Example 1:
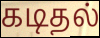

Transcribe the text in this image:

கடிதல்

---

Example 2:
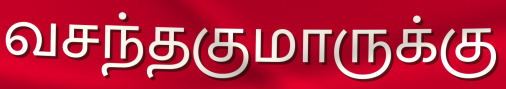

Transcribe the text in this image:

வசந்தகுமாருக்கு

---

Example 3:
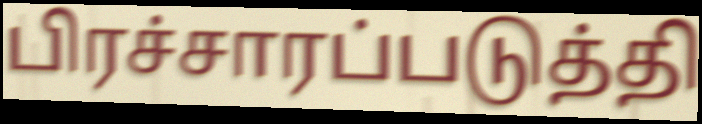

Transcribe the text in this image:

பிரச்சாரப்படுத்தி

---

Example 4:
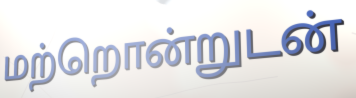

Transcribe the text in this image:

மற்றொன்றுடன்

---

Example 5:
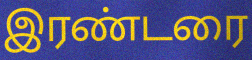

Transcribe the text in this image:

இரண்டரை